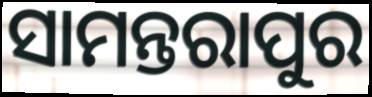
ସାମନ୍ତରାପୁର